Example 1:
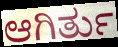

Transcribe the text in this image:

ಆಗಿರ್ತು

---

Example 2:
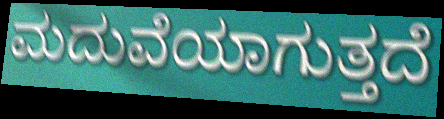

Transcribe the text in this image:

ಮದುವೆಯಾಗುತ್ತದೆ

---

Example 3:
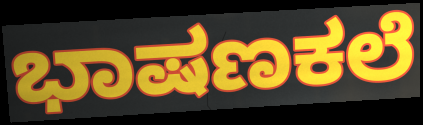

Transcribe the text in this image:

ಭಾಷಣಕಲೆ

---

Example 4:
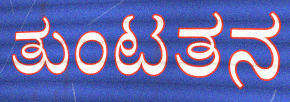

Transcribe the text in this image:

ತುಂಟತನ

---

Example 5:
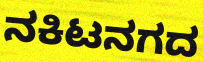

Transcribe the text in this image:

ನಕಿಟನಗದ